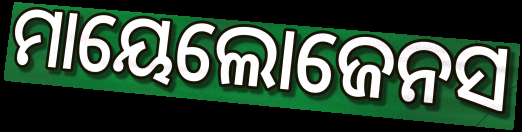
ମାୟେଲୋଜେନସ